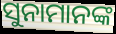
ସୁନାମାନଙ୍କ